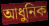
আধুনিক